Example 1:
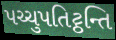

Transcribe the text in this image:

પચ્ચુપતિટ્ઠન્તિ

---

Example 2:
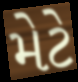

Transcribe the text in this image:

મેટે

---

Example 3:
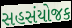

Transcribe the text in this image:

સહસંયોજક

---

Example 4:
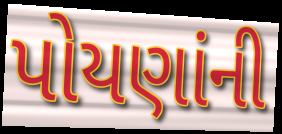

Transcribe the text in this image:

પોયણાંની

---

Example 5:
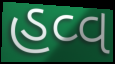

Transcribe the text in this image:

હવ્વ